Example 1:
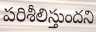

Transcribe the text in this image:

పరిశీలిస్తుందని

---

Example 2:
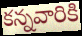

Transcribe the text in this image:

కన్నవారికి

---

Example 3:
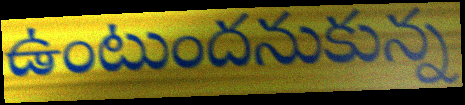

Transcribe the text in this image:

ఉంటుందనుకున్న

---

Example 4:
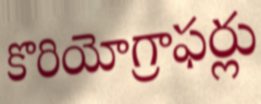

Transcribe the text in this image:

కొరియోగ్రాఫర్లు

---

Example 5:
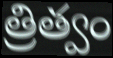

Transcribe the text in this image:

త్రిత్వం